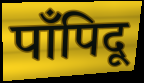
पाँपिदू